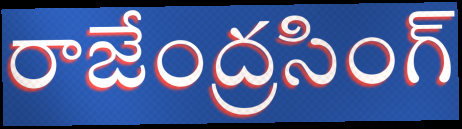
రాజేంద్రసింగ్